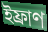
ইফ্ৰাণ